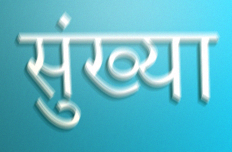
सुंख्या